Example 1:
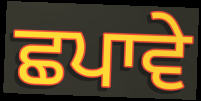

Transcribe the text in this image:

ਛਪਾਵੇ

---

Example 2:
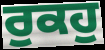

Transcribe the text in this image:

ਰੁਕਹੁ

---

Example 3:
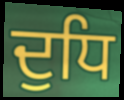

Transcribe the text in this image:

ਦੁਧਿ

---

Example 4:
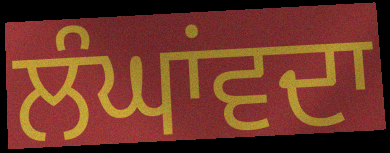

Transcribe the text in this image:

ਲੰਘਾਂਵਦਾ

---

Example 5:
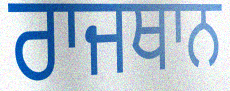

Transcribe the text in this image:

ਰਾਜਥਾਨ